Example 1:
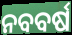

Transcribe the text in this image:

ନବବର୍ଷ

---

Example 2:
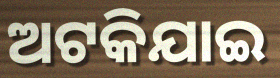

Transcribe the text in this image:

ଅଟକିଯାଇ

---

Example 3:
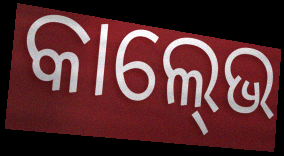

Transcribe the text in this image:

କାଲ୍‍ଭେ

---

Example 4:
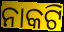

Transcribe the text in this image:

ନାକଟି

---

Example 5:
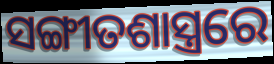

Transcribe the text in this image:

ସଙ୍ଗୀତଶାସ୍ତ୍ରରେ